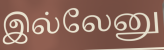
இல்லேனு